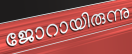
ജോറായിരുന്നു